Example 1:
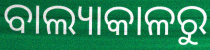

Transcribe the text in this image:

ବାଲ୍ୟାକାଳରୁ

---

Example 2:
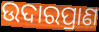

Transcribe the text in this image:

ଉଦାରପ୍ରାଣ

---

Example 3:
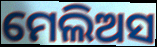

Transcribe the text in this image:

ମେଲିଅସ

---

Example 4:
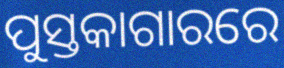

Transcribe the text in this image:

ପୁସ୍ତକାଗାରରେ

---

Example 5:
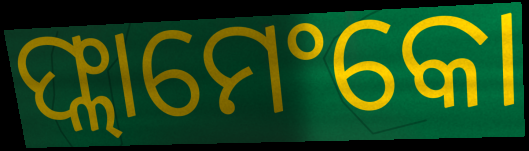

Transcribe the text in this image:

ଫ୍ଲାମେଂକୋ